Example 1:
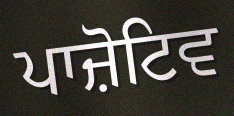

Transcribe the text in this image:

ਪਾਜ਼ੋਟਿਵ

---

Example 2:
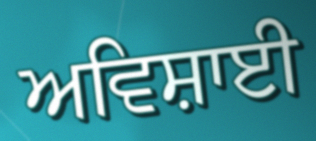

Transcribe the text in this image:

ਅਵਿਸ਼ਾਈ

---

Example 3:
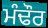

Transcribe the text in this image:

ਮੰਢੌਰ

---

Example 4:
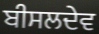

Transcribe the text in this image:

ਬੀਸਲਦੇਵ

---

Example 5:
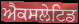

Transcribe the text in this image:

ਐਕਸਲੇਟਿਡ